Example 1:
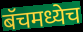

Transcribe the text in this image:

बॅचमध्येच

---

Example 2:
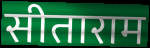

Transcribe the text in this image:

सीताराम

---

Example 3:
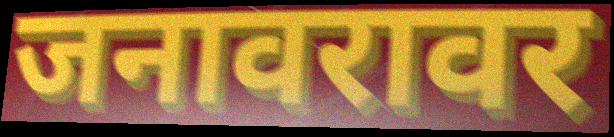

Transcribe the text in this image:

जनावरावर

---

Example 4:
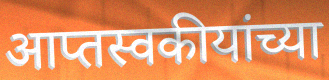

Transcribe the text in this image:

आप्तस्वकीयांच्या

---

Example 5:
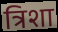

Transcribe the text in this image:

त्रिशा